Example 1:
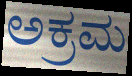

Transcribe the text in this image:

ಅಕ್ರಮ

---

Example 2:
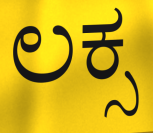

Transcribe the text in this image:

ಲಕ್ಸ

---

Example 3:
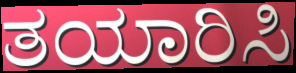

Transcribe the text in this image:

ತಯಾರಿಸಿ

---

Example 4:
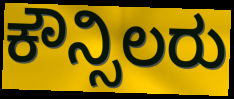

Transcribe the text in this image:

ಕೌನ್ಸಿಲರು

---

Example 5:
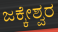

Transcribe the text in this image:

ಜಕ್ಕೇಶ್ವರ